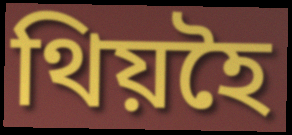
থিয়হৈ